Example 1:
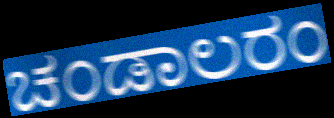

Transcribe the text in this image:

ಚಂಡಾಲರಂ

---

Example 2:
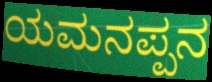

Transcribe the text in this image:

ಯಮನಪ್ಪನ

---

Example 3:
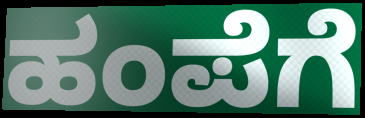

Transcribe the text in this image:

ಹಂಪೆಗೆ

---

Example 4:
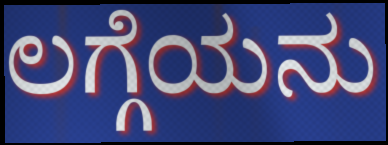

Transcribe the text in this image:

ಲಗ್ಗೆಯನು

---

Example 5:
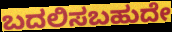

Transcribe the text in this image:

ಬದಲಿಸಬಹುದೇ